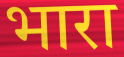
भारा